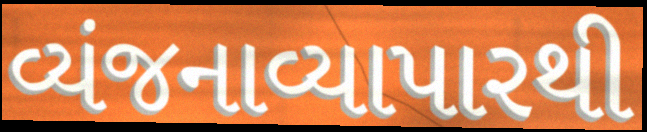
વ્યંજનાવ્યાપારથી